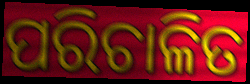
ପରିଚାଳିତ